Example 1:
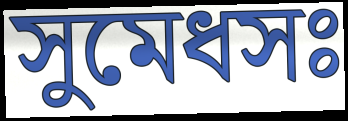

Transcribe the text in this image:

সুমেধসঃ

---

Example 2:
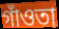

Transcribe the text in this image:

গাঁওতা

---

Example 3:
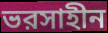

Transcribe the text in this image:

ভরসাহীন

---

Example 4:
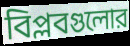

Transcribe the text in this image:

বিপ্লবগুলোর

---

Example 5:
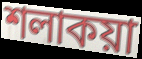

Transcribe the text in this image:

শলাকয়া